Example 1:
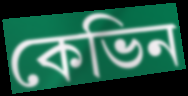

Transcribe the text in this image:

কেভিন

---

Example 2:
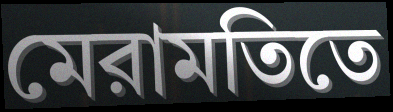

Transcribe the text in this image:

মেরামতিতে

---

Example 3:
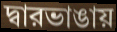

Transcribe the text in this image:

দ্বারভাঙায়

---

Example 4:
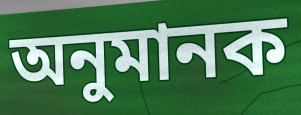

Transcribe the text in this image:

অনুমানক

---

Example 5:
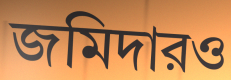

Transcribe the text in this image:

জমিদারও